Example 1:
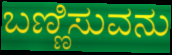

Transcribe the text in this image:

ಬಣ್ಣಿಸುವನು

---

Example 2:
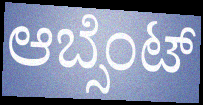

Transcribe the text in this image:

ಆಬ್ಸೆಂಟ್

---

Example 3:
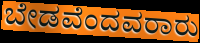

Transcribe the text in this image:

ಬೇಡವೆಂದವರಾರು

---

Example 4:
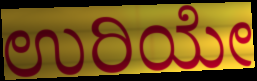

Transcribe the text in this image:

ಉರಿಯೇ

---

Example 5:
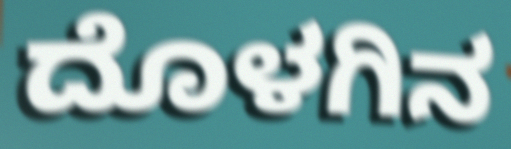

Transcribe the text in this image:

ದೊಳಗಿನ